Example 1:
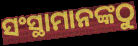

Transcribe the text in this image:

ସଂସ୍ଥାମାନଙ୍କଠୁ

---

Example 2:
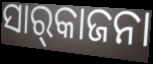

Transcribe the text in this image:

ସାର୍‌କାଜନା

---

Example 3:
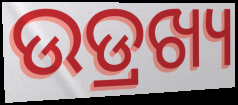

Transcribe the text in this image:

ଉଡ୍ରଖ୍ୟ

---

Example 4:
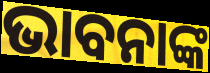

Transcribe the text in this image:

ଭାବନାଙ୍କ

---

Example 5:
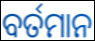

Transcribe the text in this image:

ବର୍ତମାନ